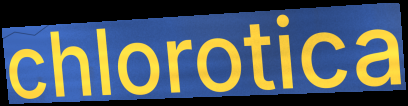
chlorotica